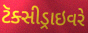
ટૅક્સીડ્રાઇવરે